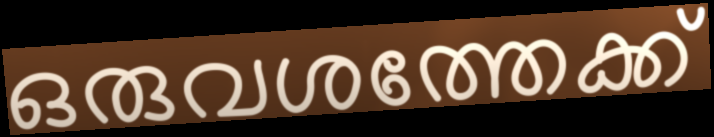
ഒരുവശത്തേക്ക്